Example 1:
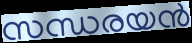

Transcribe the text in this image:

സന്ധരയൻ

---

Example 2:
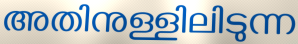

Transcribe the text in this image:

അതിനുള്ളിലിടുന്ന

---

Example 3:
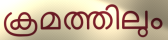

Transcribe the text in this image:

ക്രമത്തിലും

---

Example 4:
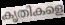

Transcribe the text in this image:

കൃതികളെ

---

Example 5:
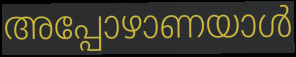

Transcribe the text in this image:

അപ്പോഴാണയാൾ